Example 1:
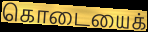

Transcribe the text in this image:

கொடையைக்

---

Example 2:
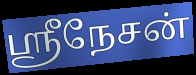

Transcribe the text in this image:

ஸ்ரீநேசன்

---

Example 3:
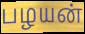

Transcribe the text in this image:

பழயன்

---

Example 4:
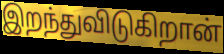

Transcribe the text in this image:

இறந்துவிடுகிறான்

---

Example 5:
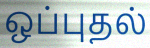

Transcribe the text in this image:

ஒப்புதல்